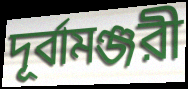
দূর্বামঞ্জরী